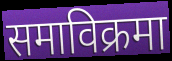
समाविक्रमा